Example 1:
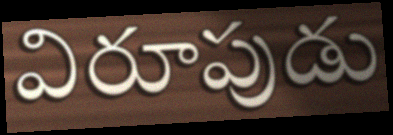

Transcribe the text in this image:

విరూపుడు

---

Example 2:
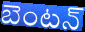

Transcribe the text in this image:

బెంటన్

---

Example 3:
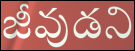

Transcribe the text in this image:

జీవుడని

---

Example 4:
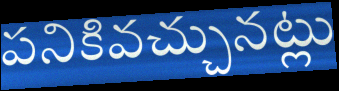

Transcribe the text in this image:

పనికివచ్చునట్లు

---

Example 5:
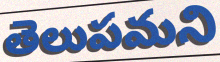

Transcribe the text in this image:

తెలుపమని